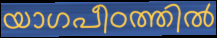
യാഗപീഠത്തിൽ